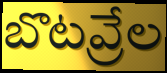
బొటవ్రేల